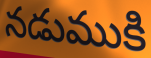
నడుముకి